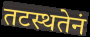
तटस्थतेनं